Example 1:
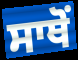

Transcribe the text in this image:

ਸਾਥੋਂ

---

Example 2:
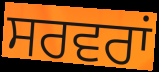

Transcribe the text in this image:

ਸਰਵਰਾਂ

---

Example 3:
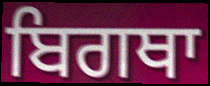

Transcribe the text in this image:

ਬਿਗਥਾ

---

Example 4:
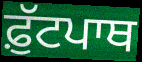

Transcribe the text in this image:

ਫ਼ੁੱਟਪਾਥ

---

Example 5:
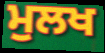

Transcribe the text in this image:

ਮੁਲਖ